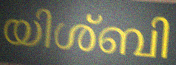
യിശ്ബി